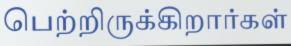
பெற்றிருக்கிறார்கள்